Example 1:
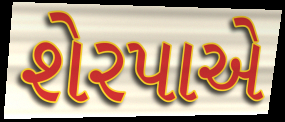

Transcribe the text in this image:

શેરપાએ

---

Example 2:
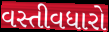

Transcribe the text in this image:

વસ્તીવધારો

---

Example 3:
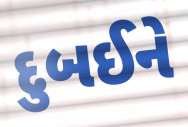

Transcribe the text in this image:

દુબઈને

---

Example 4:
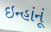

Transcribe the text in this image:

ઇન્હાંનૂં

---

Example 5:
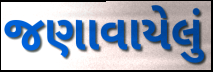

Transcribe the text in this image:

જણાવાયેલું